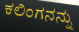
ಕಲಿಂಗನನ್ನು